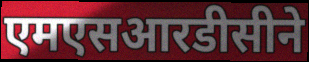
एमएसआरडीसीने